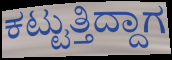
ಕಟ್ಟುತ್ತಿದ್ದಾಗ